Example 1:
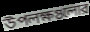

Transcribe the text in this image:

উপলক্ষগুলোর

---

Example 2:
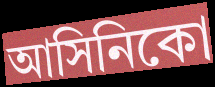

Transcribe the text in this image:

আসিনিকো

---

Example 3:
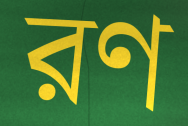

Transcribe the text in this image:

রণ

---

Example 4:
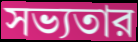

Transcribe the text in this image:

সভ্যতার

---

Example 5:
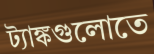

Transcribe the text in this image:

ট্যাঙ্কগুলোতে